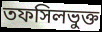
তফসিলভুক্ত